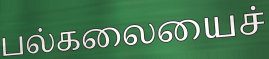
பல்கலையைச்